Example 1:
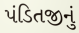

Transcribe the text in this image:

પંડિતજીનું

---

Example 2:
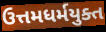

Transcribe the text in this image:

ઉત્તમધર્મયુક્ત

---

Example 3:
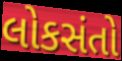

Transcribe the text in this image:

લોકસંતો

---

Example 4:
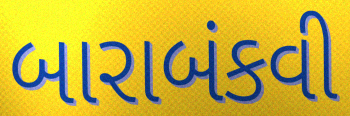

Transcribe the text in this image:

બારાબંકવી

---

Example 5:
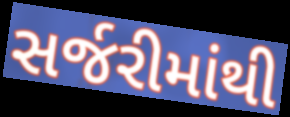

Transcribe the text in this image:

સર્જરીમાંથી